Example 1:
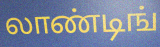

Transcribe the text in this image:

லாண்டிங்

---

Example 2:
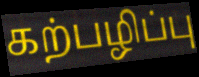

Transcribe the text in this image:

கற்பழிப்பு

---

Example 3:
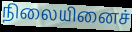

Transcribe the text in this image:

நிலையினைச்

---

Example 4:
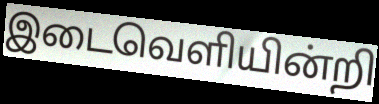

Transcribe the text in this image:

இடைவெளியின்றி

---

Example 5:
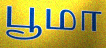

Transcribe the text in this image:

பூமா